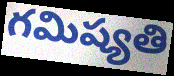
గమిష్యతి